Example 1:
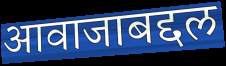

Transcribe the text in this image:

आवाजाबद्दल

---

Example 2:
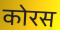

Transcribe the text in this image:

कोरस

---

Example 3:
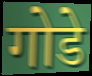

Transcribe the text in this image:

गोडे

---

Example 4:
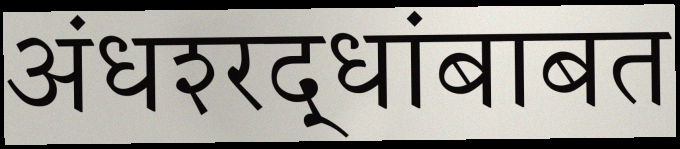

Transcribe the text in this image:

अंधश्रद्धांबाबत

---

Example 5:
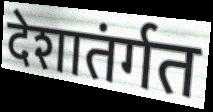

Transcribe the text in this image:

देशातंर्गत